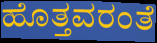
ಹೊತ್ತವರಂತೆ